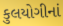
કુલયોગીનાં